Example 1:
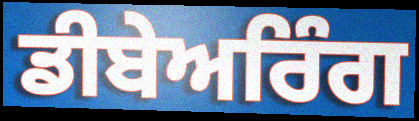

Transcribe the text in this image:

ਡੀਬੇਅਰਿੰਗ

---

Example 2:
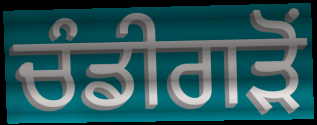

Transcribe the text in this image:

ਚੰਡੀਗੜੋਂ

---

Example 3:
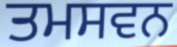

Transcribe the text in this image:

ਤਮਸਵਨ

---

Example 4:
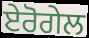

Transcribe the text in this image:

ਏਰੋਗੇਲ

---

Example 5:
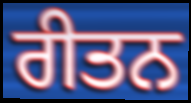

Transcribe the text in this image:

ਰੀਤਨ